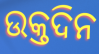
ଉକ୍ତଦିନ